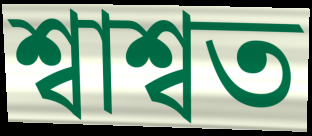
শ্বাশ্বত